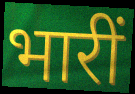
भारीं